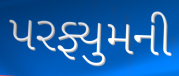
પરફ્યુમની